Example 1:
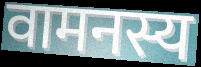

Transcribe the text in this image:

वामनस्य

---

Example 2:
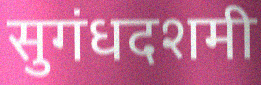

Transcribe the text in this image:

सुगंधदशमी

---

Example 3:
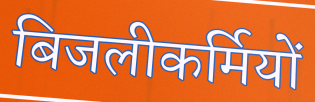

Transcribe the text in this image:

बिजलीकर्मियों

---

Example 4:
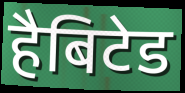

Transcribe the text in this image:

हैबिटेड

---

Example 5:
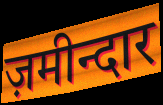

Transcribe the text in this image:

ज़मीन्दार